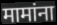
मामांना